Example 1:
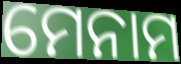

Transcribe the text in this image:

ମେନାମ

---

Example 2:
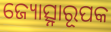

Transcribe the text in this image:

ଜ୍ୟୋତ୍ସ୍ନାରୂପକ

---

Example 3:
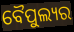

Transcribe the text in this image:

ବୈପୁଲ୍ୟର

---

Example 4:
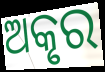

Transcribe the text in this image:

ଅକୃର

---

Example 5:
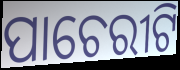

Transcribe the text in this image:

ପାଚେରୀଟି